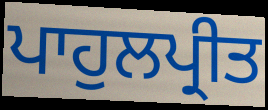
ਪਾਹੁਲਪ੍ਰੀਤ